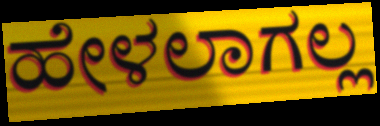
ಹೇಳಲಾಗಲ್ಲ